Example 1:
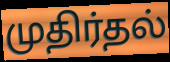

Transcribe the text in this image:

முதிர்தல்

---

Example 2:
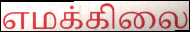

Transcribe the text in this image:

எமக்கிலை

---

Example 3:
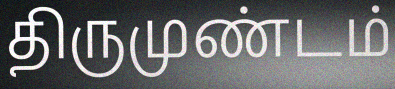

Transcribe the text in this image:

திருமுண்டம்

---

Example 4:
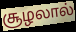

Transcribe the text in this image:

சூழலால்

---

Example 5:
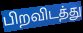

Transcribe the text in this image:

பிறவிடத்து